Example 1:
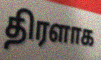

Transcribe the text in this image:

திரளாக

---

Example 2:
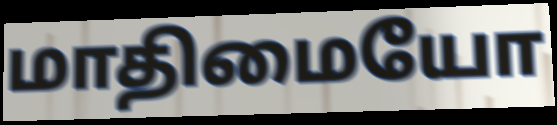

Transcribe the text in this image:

மாதிமையோ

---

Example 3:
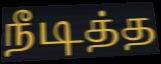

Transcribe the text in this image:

நீடித்த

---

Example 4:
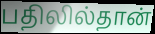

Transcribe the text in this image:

பதிலில்தான்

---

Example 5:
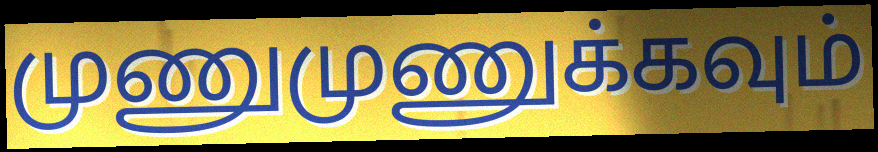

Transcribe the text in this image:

முணுமுணுக்கவும்